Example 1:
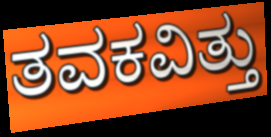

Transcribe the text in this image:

ತವಕವಿತ್ತು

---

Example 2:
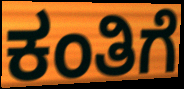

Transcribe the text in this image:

ಕಂತಿಗೆ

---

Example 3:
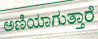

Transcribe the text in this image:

ಅಣಿಯಾಗುತ್ತಾರೆ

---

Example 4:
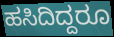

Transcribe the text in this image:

ಹಸಿದಿದ್ದರೂ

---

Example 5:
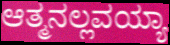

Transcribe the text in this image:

ಆತ್ಮನಲ್ಲವಯ್ಯಾ